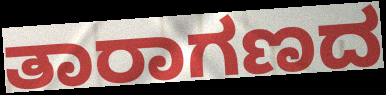
ತಾರಾಗಣದ